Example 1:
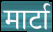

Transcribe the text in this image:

मार्टा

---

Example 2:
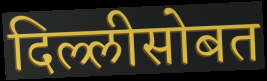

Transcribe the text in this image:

दिल्लीसोबत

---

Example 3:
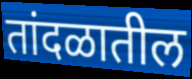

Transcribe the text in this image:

तांदळातील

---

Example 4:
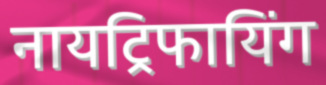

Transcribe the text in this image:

नायट्रिफायिंग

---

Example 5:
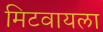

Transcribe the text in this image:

मिटवायला